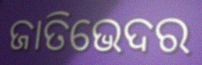
ଜାତିଭେଦର